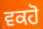
ਵਕਹੋ